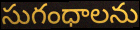
సుగంధాలను